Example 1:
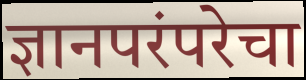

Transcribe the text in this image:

ज्ञानपरंपरेचा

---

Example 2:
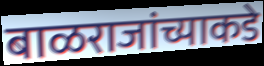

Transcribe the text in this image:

बाळराजांच्याकडे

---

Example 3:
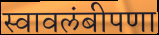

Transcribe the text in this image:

स्वावलंबीपणा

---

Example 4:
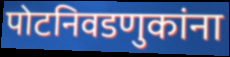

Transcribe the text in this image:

पोटनिवडणुकांना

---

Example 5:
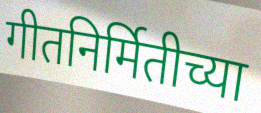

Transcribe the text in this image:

गीतनिर्मितीच्या